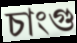
চাংগু